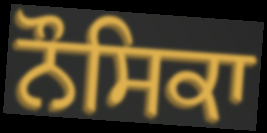
ਨੌਸਿਕਾ